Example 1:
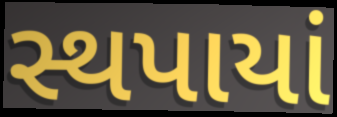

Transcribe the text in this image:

સ્થપાયાં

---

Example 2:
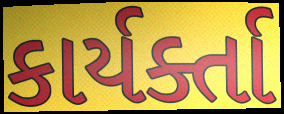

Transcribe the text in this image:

કાર્યર્ક્તા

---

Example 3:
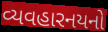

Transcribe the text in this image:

વ્યવહારનયનો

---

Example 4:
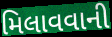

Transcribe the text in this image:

મિલાવવાની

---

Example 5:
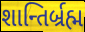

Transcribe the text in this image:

શાન્તિર્બ્રહ્મ